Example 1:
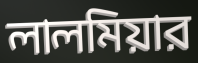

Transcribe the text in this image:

লালমিয়ার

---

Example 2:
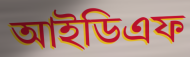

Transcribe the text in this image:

আইডিএফ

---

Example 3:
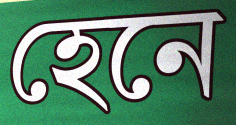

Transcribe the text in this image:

হেনে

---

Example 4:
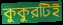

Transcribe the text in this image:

কুকুরটিই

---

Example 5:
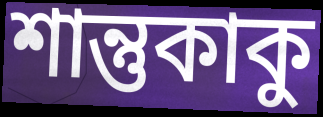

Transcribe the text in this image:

শান্তুকাকু